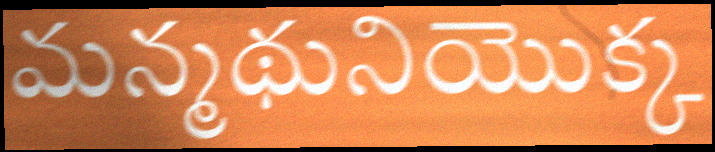
మన్మథునియొక్క